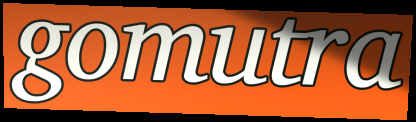
gomutra